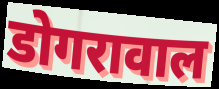
डोगरावाल